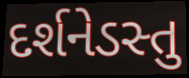
દર્શનેડસ્તુ